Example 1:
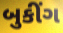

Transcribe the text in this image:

બુકીંગ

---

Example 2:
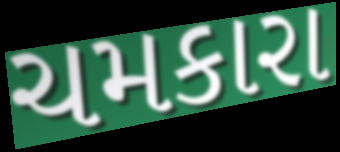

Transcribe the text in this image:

ચમકારા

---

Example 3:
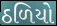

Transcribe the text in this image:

ઠળિયો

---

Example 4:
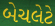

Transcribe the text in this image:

બેચલેટે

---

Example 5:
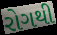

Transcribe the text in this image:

રોગથી